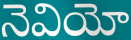
నెవియో